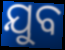
ଯୁବ